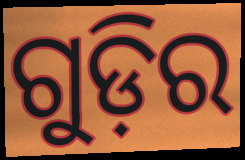
ଗୁଡ଼ିର